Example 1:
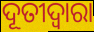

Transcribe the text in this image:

ଦୂତୀଦ୍ୱାରା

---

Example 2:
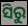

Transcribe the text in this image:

ସିରୁ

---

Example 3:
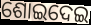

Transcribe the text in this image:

ଶୋଇଦେଇ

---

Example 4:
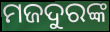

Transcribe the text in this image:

ମଜଦୁରଙ୍କ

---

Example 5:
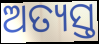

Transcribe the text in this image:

ଅତ୍ୟସ୍ତ